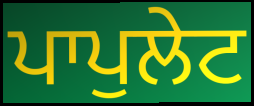
ਪਾਪੁਲੇਟ